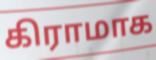
கிராமாக